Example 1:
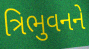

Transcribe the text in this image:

ત્રિભુવનને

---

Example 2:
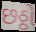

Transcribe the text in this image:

છઠ્ઠો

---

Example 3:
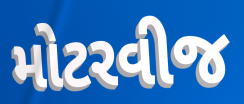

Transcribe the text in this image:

મોટરવીજ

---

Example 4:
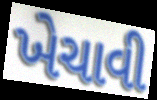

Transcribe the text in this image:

ખેચાવી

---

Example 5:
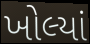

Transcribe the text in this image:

ખોલ્યાં